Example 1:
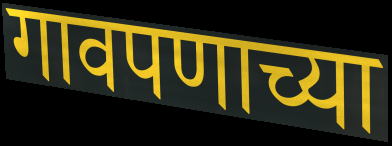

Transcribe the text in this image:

गावपणाच्या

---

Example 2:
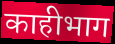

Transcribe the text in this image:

काहीभाग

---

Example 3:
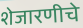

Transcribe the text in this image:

शेजारणीचे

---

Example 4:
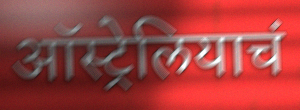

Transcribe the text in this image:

ऑस्ट्रेलियाचं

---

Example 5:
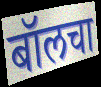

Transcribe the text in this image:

बॉलचा